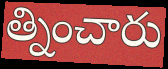
త్నించారు